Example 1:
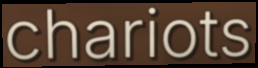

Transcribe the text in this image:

chariots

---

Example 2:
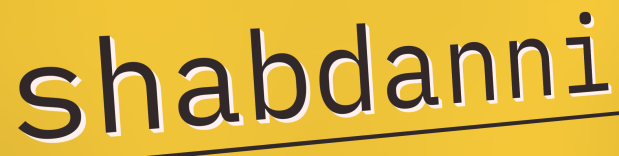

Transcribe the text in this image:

shabdanni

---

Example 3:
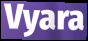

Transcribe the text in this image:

Vyara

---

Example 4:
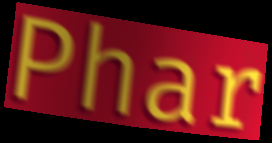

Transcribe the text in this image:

Phar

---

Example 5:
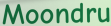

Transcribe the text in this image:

Moondru